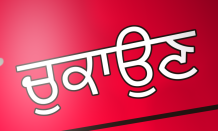
ਚੁਕਾਉਣ